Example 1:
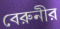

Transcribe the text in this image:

বেরুনীর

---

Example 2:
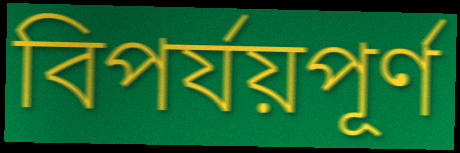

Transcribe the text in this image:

বিপর্যয়পূর্ণ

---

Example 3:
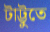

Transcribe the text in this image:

টাট্টুতে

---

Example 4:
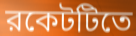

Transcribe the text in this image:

রকেটটিতে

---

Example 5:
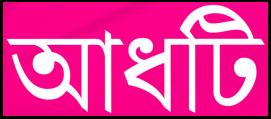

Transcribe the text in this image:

আধটি